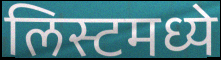
लिस्टमध्ये